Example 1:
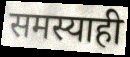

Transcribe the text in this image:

समस्याही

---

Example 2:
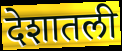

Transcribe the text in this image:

देशातली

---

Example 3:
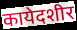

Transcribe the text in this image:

कायेदशीर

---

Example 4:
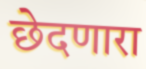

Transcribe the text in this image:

छेदणारा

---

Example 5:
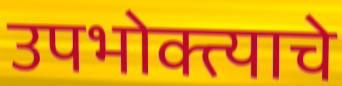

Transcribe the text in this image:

उपभोक्त्याचे